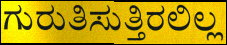
ಗುರುತಿಸುತ್ತಿರಲಿಲ್ಲ